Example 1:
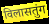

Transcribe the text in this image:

विलासतुंग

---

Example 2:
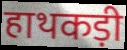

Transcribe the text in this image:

हाथकड़ी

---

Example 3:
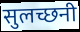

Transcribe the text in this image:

सुलच्छनी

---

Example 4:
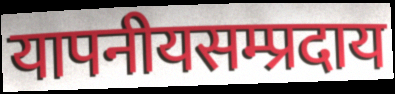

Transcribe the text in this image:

यापनीयसम्प्रदाय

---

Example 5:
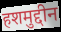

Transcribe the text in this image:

हशमुद्दीन